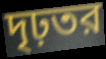
দৃঢ়তর